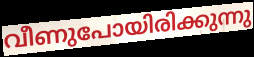
വീണുപോയിരിക്കുന്നു